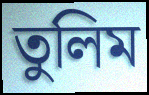
তুলিম